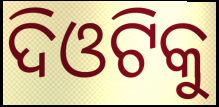
ଦିଓଟିକୁ